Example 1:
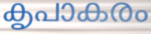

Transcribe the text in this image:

കൃപാകരം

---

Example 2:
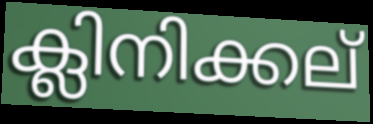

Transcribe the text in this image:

ക്ലിനിക്കല്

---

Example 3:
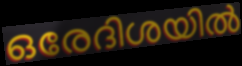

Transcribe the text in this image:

ഒരേദിശയിൽ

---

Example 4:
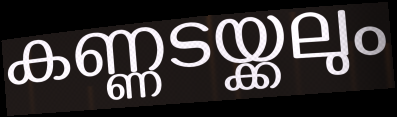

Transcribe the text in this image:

കണ്ണടയ്ക്കലും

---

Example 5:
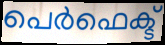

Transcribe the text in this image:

പെർഫെക്ട്